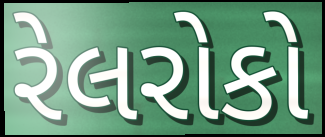
રેલરોકો